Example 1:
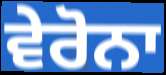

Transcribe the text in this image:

ਵੇਰੋਨਾ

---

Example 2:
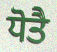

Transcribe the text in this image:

ਧੋਤੈ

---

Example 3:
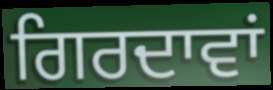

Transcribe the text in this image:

ਗਿਰਦਾਵਾਂ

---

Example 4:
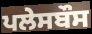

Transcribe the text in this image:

ਪਲੇਸਬੌਸ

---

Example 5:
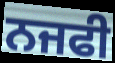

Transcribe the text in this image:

ਨਜਫੀ